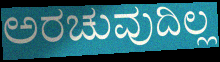
ಅರಚುವುದಿಲ್ಲ